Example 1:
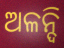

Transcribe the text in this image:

ଅଳନ୍ଦି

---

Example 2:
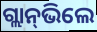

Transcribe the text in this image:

ଗ୍ଲାନ୍‌ଭିଲେ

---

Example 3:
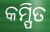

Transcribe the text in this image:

କମ୍ପିତ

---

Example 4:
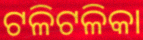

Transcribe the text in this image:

ଟଳିଟଳିକା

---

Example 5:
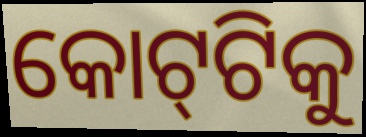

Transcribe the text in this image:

କୋଟ୍‌ଟିକୁ